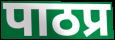
पाठप्र